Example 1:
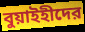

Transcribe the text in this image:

বুয়াইহীদের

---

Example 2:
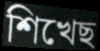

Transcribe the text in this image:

শিখেছ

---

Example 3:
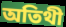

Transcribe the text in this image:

অতিথী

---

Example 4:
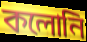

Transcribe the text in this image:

কলোনি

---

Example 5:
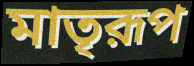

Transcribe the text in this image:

মাতৃরূপ